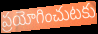
ప్రయోగించుటకు